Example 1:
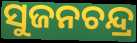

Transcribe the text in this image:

ସୁଜନଚନ୍ଦ୍ର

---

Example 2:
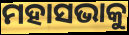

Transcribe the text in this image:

ମହାସଭାକୁ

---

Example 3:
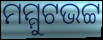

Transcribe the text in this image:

ମମ୍ମୁଟଭଟ୍ଟ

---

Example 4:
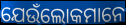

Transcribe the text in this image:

ଯେଉଁଲୋକମାନେ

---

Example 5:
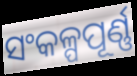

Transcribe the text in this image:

ସଂକଳ୍ପପୂର୍ଣ୍ଣ